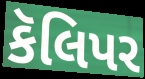
કૅલિપર